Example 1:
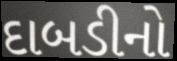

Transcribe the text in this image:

દાબડીનો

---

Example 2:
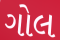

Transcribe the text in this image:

ગોલ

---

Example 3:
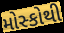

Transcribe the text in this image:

મોસ્કોથી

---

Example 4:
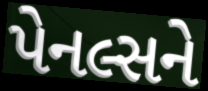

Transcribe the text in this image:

પેનલ્સને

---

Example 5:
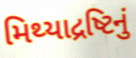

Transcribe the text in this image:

મિથ્યાદ્રષ્ટિનું